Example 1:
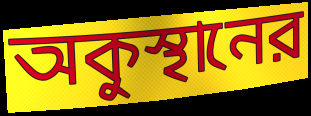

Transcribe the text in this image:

অকুস্থানের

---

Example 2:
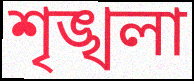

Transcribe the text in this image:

শৃঙ্খলা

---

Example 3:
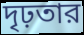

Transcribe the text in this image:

দৃঢ়তার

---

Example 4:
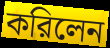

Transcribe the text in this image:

করিলেন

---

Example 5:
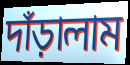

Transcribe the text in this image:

দাঁড়ালাম